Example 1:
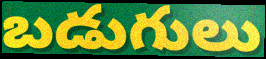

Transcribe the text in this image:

బడుగులు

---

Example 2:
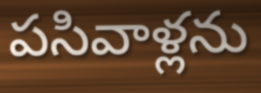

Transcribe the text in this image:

పసివాళ్లను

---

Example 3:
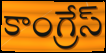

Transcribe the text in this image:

కాంగ్రేస్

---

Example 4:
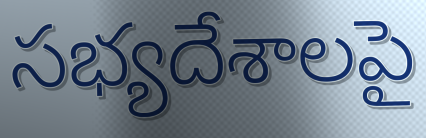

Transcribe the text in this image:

సభ్యదేశాలపై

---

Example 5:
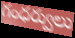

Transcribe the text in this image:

గంధర్వులు